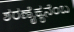
ಶರಣೈಕ್ಯನೆಂಬ